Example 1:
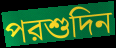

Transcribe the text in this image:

পরশুদিন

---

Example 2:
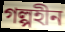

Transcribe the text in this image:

গল্পহীন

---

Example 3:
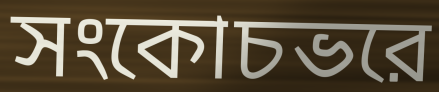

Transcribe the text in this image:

সংকোচভরে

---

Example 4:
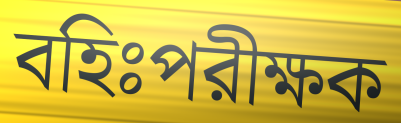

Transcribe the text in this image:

বহিঃপরীক্ষক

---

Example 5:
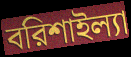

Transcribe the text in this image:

বরিশাইল্যা